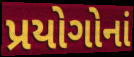
પ્રયોગોનાં